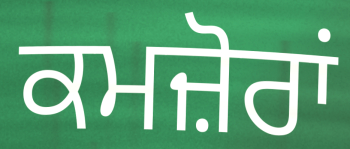
ਕਮਜ਼ੋਰਾਂ